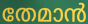
തേമാൻ